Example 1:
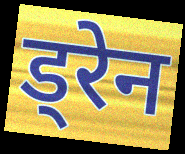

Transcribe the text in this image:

ड्रेन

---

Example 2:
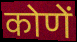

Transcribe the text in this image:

कोणें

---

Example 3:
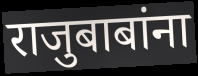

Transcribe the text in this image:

राजुबाबांना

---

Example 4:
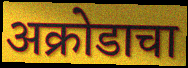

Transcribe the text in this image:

अक्रोडाचा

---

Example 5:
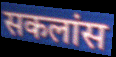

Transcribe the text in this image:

सकलांस